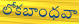
లోకబాంధవా